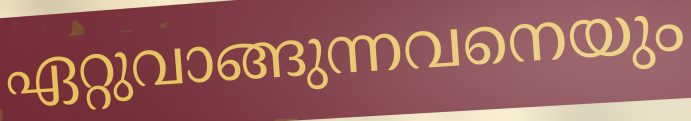
ഏറ്റുവാങ്ങുന്നവനെയും